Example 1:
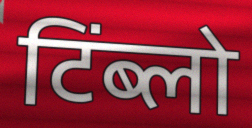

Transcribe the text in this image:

टिंब्लो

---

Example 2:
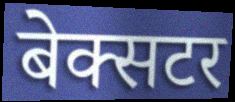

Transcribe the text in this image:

बेक्सटर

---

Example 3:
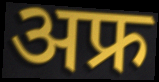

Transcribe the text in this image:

अफ्र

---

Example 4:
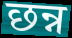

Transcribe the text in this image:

छन्न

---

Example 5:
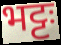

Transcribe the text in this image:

भट्टः